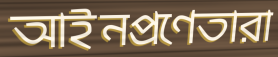
আইনপ্রণেতারা